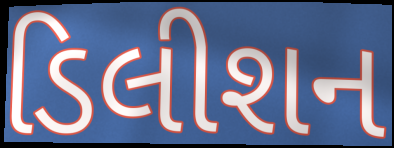
ડિલીશન